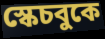
স্কেচবুকে